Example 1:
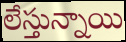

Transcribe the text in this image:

లేస్తున్నాయి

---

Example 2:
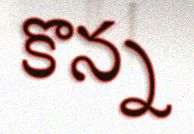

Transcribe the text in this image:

కొన్న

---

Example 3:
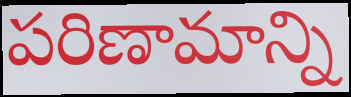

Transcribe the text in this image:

పరిణామాన్ని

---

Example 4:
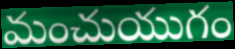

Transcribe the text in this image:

మంచుయుగం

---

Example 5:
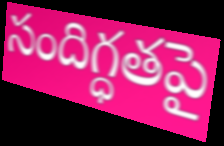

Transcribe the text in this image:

సందిగ్ధతపై